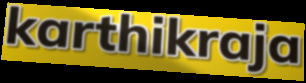
karthikraja